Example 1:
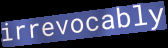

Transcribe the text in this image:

irrevocably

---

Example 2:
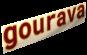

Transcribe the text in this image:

gourava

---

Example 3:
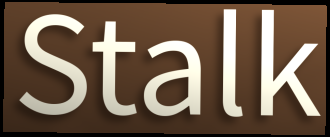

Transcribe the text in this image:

Stalk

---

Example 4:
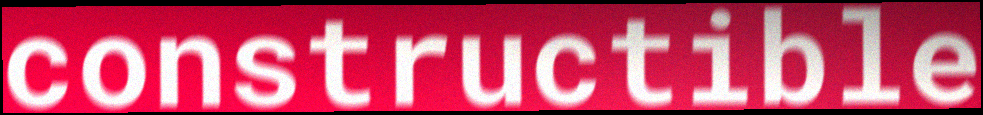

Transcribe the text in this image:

constructible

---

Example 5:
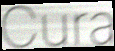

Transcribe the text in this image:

Cura